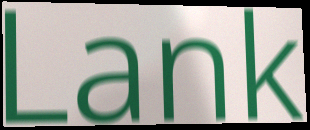
Lank